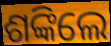
ଶଙ୍କିଲେ